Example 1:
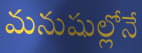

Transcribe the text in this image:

మనుషుల్లోనే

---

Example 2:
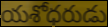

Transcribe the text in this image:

యశోధరుడు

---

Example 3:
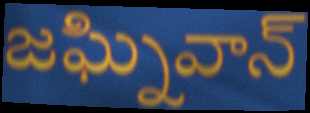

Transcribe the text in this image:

జఘ్నివాన్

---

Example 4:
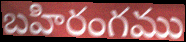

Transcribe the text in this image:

బహిరంగము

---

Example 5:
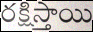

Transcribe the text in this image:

రక్షిస్తాయి